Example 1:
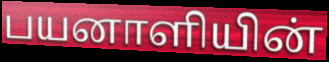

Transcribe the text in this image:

பயனாளியின்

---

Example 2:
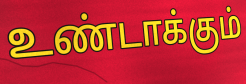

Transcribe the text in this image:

உண்டாக்கும்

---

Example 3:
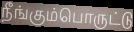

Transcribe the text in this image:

நீங்கும்பொருட்டு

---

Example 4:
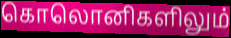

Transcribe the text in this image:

கொலொனிகளிலும்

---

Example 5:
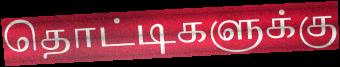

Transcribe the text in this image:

தொட்டிகளுக்கு